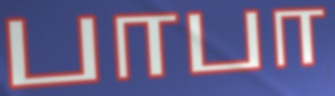
பாபா